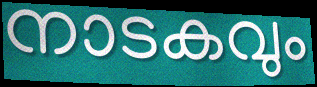
നാടകവും